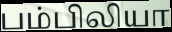
பம்பிலியா